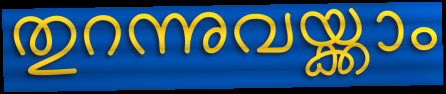
തുറന്നുവയ്ക്കാം